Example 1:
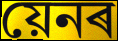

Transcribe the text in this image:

য়েনৰ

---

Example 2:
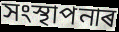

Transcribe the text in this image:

সংস্থাপনাৰ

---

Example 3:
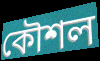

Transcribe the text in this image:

কৌশল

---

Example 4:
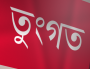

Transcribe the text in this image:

তুংগত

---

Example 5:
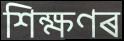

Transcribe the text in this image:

শিক্ষণৰ